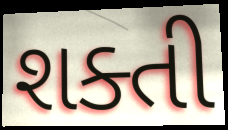
શક્તી